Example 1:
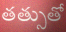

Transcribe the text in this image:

తత్సుతో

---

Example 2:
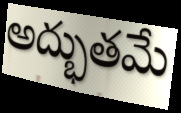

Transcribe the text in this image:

అద్భుతమే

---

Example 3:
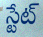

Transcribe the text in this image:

స్టేట్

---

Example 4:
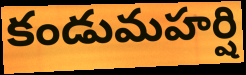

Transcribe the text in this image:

కండుమహర్షి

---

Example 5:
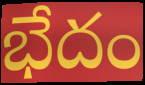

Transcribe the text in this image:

భేదం